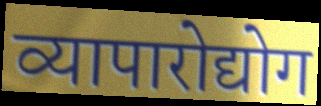
व्यापारोद्योग